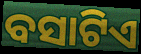
ବସାଟିଏ